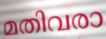
മതിവരാ